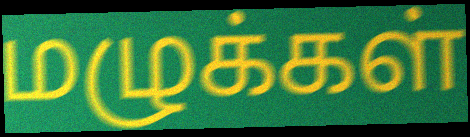
மழுக்கள்